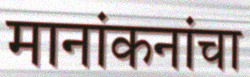
मानांकनांचा